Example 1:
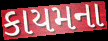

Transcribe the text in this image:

કાયમના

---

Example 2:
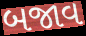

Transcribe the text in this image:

બજાવ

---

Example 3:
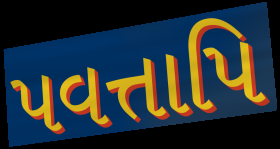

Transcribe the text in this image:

પવત્તાપિ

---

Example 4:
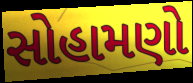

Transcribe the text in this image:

સોહામણો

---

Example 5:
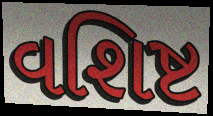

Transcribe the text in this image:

વશિષ્ટ